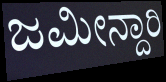
ಜಮೀನ್ದಾರಿ